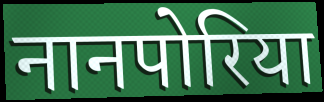
नानपोरिया